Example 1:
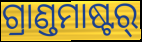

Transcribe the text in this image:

ଗ୍ରାଣ୍ଡମାଷ୍ଟର୍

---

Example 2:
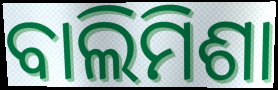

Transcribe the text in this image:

ବାଲିମିଶା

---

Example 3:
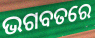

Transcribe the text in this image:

ଭଗବତରେ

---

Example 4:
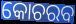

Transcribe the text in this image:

କୋଚରବ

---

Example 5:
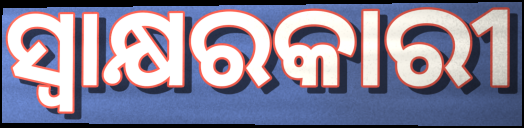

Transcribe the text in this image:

ସ୍ୱାକ୍ଷରକାରୀ